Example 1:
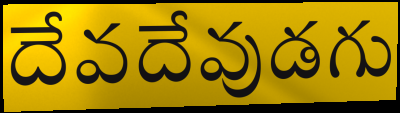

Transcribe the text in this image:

దేవదేవుడగు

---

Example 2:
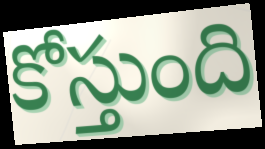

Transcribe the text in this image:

కోస్తుంది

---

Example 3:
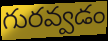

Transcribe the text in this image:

గురవ్వడం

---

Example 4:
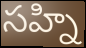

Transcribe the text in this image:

సహ్ని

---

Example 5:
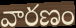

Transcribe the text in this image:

వారణం